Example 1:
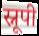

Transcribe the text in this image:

स्नूपी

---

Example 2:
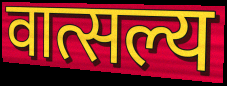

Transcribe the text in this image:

वात्सल्य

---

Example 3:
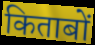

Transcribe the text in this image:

किताबों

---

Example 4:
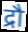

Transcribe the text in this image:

द्रौ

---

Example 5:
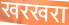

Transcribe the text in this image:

खरखरा